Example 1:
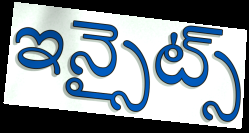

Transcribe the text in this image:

ఇన్సైట్స్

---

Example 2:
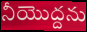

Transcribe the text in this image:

నీయొద్దను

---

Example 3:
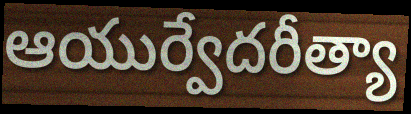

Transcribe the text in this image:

ఆయుర్వేదరీత్యా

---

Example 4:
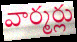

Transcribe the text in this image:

వార్మర్లు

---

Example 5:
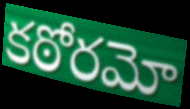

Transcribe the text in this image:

కఠోరమో